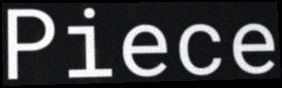
Piece